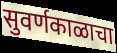
सुवर्णकाळाचा